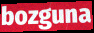
bozguna